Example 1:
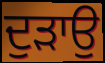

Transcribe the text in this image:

ਦੁੜਾਉ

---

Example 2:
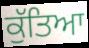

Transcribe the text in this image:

ਕੁੱਤਿਆ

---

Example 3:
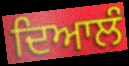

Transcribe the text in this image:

ਦਿਆਲੰ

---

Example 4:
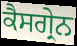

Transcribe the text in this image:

ਕੈਸਗ੍ਰੇਨ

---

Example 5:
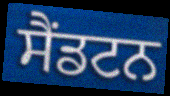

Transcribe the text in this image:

ਸੈਂਡਟਨ